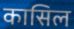
कासिल